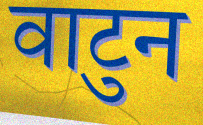
वाटुन